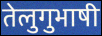
तेलुगुभाषी